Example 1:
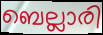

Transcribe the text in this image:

ബെല്ലാരി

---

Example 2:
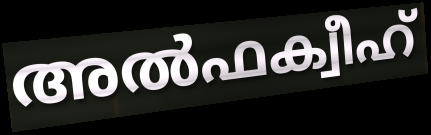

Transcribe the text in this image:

അൽഫക്വീഹ്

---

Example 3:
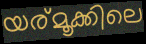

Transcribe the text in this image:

യര്മൂക്കിലെ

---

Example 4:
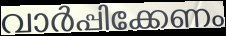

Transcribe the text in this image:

വാർപ്പിക്കേണം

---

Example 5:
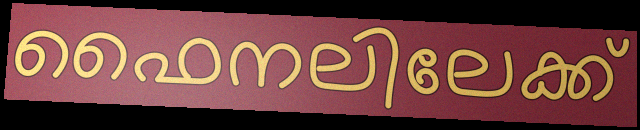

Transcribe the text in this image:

ഫൈനലിലേക്ക്